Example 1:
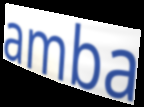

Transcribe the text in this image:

amba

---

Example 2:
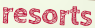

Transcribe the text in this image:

resorts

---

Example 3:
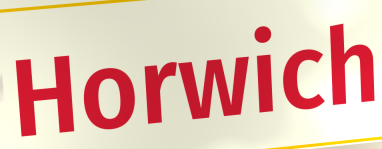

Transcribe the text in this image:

Horwich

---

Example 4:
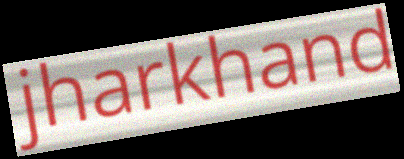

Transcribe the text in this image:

jharkhand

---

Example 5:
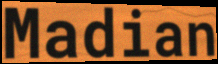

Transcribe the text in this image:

Madian